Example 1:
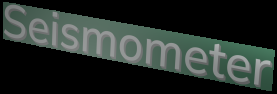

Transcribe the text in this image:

Seismometer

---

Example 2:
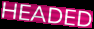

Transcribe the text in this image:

HEADED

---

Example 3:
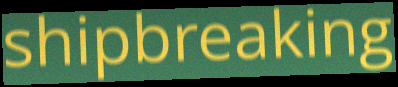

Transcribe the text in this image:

shipbreaking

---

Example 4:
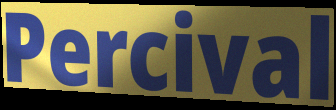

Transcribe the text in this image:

Percival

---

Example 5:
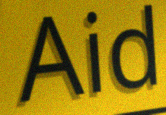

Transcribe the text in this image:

Aid